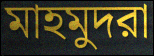
মাহমুদরা